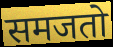
समजतो